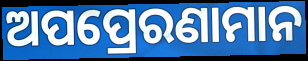
ଅପପ୍ରେରଣାମାନ